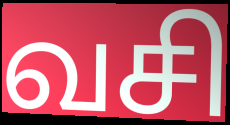
வசி